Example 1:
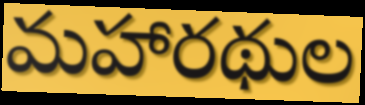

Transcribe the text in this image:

మహారథుల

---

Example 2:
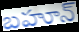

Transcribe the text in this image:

బహూన్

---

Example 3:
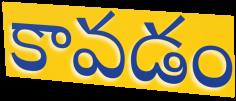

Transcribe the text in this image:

కావడం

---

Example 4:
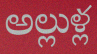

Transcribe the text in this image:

అల్లుళ్ల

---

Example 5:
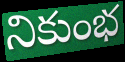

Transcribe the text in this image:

నికుంభ